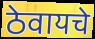
ठेवायचे